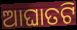
ଆଘାତଟି